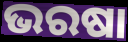
ଭରଷା